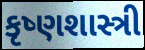
કૃષ્ણશાસ્ત્રી